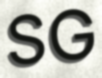
SG